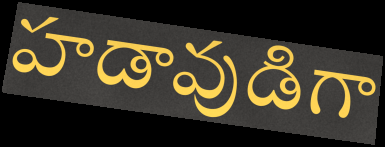
హడావుడిగా